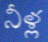
నీళ్ల